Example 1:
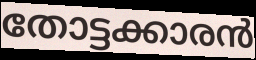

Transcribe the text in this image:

തോട്ടക്കാരൻ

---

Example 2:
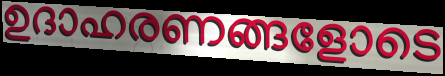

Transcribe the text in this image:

ഉദാഹരണങ്ങളോടെ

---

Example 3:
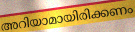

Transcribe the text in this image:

അറിയാമായിരിക്കണം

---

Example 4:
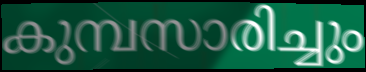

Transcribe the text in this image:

കുമ്പസാരിച്ചും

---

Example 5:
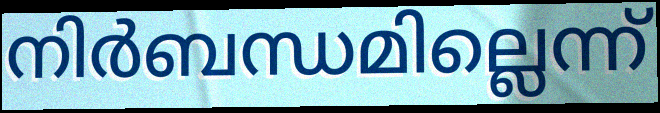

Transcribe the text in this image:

നിർബന്ധമില്ലെന്ന്